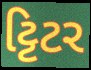
ટ્ટિટર